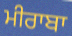
ਮੀਰਾਬਾ